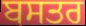
ਬਸਤਰ